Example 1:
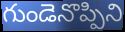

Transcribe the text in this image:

గుండెనొప్పిని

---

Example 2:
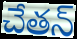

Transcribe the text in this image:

చేతన్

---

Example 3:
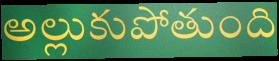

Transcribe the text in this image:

అల్లుకుపోతుంది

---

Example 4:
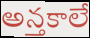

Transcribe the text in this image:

అన్తకాలే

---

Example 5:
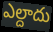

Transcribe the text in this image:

ఎల్దాదు